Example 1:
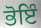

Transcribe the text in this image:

ਭੋਇੰ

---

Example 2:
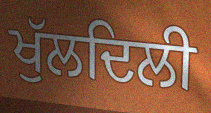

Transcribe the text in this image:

ਖੁੱਲਦਿਲੀ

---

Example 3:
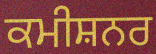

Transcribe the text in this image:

ਕਮੀਸ਼ਨਰ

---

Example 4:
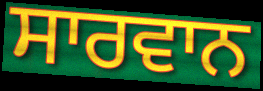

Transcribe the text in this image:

ਸਾਰਵਾਨ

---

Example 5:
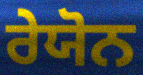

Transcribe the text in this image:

ਰੇਯੋਨ